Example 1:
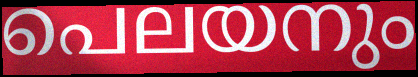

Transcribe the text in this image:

പെലയനും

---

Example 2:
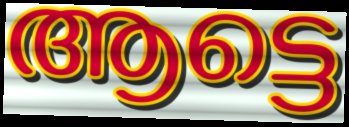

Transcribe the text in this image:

ആട്ടെ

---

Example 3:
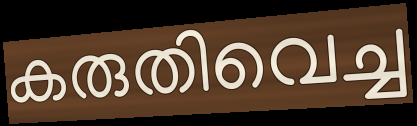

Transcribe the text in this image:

കരുതിവെച്ച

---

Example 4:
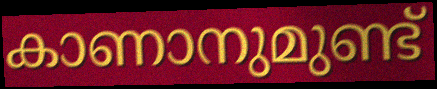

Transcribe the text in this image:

കാണാനുമുണ്ട്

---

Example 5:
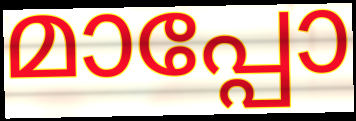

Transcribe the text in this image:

മാപ്പോ